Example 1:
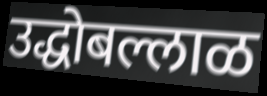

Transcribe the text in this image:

उद्धोबल्लाळ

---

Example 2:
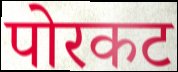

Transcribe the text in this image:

पोरकट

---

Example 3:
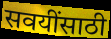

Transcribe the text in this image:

सवयींसाठी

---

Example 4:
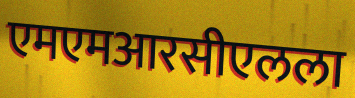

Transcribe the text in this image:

एमएमआरसीएलला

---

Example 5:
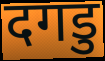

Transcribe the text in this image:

दगडु